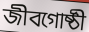
জীবগোষ্ঠী